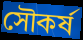
সৌকর্ষ